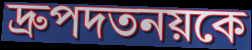
দ্রুপদতনয়কে